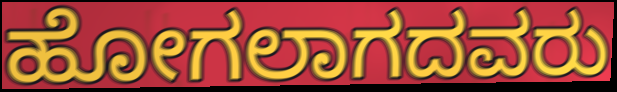
ಹೋಗಲಾಗದವರು